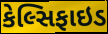
કેલ્સિફાઇડ